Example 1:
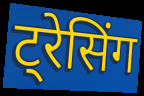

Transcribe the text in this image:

ट्रेसिंग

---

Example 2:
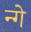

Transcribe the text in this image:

न्गे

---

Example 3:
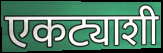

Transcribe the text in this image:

एकट्याशी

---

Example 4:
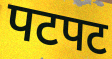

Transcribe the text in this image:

पटपट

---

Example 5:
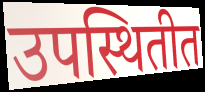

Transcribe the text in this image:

उपस्थितीत